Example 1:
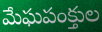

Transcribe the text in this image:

మేఘపంక్తుల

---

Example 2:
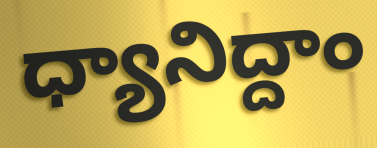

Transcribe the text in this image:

ధ్యానిద్దాం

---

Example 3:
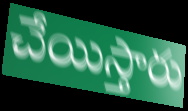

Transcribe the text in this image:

చేయిస్తారు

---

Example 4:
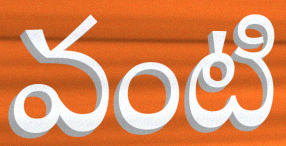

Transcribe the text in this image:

వంటి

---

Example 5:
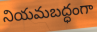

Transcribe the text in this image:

నియమబద్ధంగా